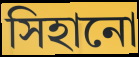
সিহানো